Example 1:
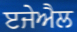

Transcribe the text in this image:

ੲਜੇਐਲ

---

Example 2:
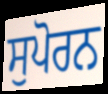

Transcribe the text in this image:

ਸੁਪੋਰਨ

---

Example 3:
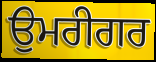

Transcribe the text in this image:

ਉਮਰੀਗਰ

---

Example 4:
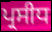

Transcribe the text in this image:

ਪ੍ਰਸੀਧ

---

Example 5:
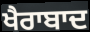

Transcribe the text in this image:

ਖੈਰਾਬਾਦ